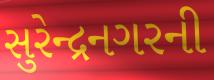
સુરેન્દ્રનગરની